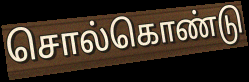
சொல்கொண்டு